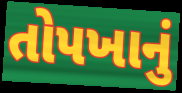
તોપખાનું